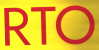
RTO